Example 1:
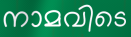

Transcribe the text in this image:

നാമവിടെ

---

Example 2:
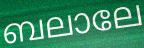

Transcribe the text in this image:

ബലാലേ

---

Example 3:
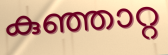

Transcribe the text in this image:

കുഞ്ഞാറ്റ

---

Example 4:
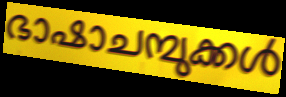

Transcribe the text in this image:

ഭാഷാചമ്പുക്കൾ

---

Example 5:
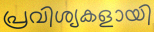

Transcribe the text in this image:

പ്രവിശ്യകളായി